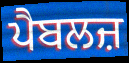
ਪੈਬਲਜ਼